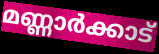
മണ്ണാർക്കാട്